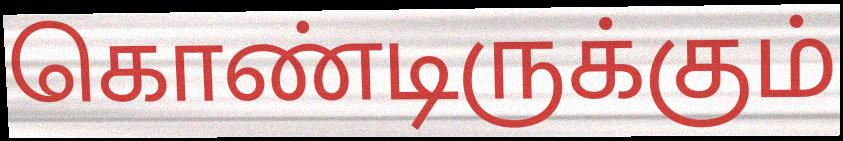
கொண்டிருக்கும்